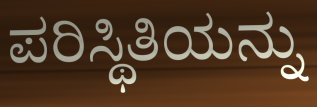
ಪರಿಸ್ಥಿತಿಯನ್ನು